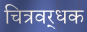
चित्रवर्धक